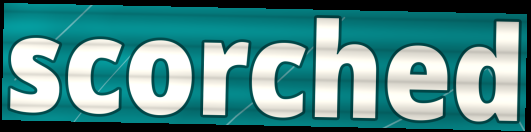
scorched